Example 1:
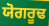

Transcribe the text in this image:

ਯੋਗਰੂਢ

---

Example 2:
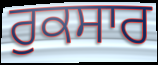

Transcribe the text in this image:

ਰੁਕਸਾਰ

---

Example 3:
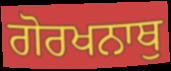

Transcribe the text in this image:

ਗੋਰਖਨਾਥੁ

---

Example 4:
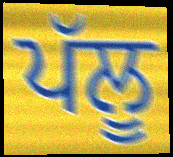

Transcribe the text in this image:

ਪੱਲੂ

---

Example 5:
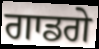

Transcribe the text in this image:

ਗਾਡਗੇ